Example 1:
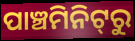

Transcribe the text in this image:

ପାଞ୍ଚମିନିଟ୍‌ରୁ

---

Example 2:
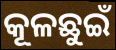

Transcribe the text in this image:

କୂଳଛୁଇଁ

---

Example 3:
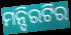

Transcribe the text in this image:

ମନ୍ଦିରଟିର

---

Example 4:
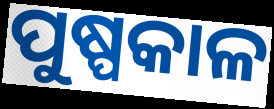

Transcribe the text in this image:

ପୁଷ୍ପକାଳ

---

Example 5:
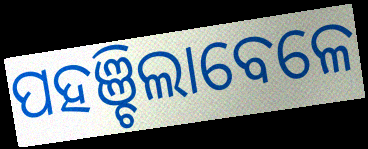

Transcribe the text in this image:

ପହଞ୍ଚିଲାବେଳେ